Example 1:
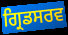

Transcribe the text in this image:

ਗ੍ਰਿਡਸਰਵ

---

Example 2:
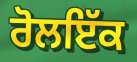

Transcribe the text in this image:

ਰੋਲਇੱਕ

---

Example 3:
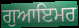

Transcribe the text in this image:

ਗੁਆਇਮਰ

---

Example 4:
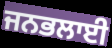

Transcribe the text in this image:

ਜਨਭਲਾਈ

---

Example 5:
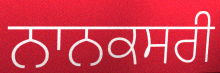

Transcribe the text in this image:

ਨਾਨਕਸਰੀ